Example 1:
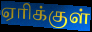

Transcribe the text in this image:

ஏரிக்குள்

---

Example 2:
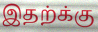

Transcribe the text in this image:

இதற்க்கு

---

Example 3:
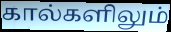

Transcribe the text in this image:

கால்களிலும்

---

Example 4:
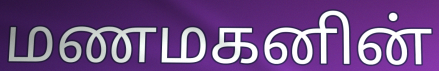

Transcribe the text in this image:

மணமகனின்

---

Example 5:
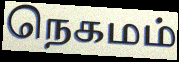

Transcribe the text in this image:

நெகமம்